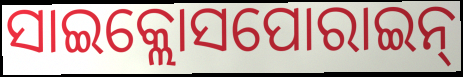
ସାଇକ୍ଲୋସପୋରାଇନ୍